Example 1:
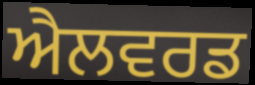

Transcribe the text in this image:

ਐਲਵਰਡ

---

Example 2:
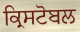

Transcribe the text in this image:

ਕ੍ਰਿਸਟੋਬਲ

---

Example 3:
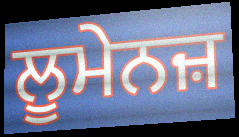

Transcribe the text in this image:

ਲੂਮੇਨਜ਼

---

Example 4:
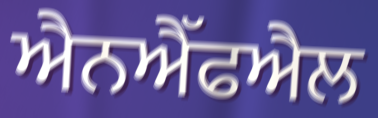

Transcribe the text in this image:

ਐਨਐੱਫਐਲ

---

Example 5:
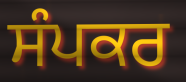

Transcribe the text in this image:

ਸੰਪਕਰ